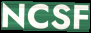
NCSF